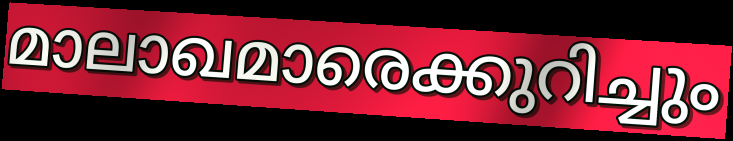
മാലാഖമാരെക്കുറിച്ചും